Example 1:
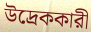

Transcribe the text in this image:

উদ্রেককারী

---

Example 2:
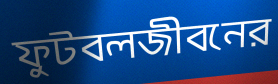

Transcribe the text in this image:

ফুটবলজীবনের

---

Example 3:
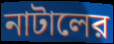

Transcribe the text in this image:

নাটালের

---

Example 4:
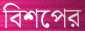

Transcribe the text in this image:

বিশপের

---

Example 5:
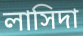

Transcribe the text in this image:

লাসিদা